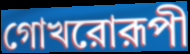
গোখরোরূপী